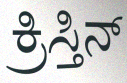
ಕ್ರಿಸ್ತಿನ್